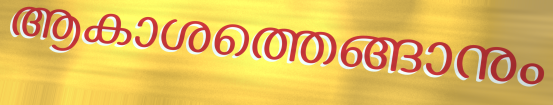
ആകാശത്തെങ്ങാനും